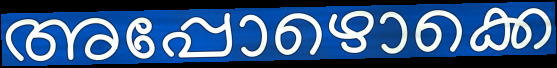
അപ്പോഴൊക്കെ